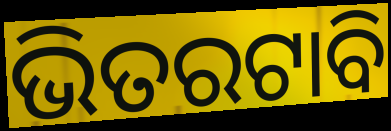
ଭିତରଟାବି